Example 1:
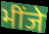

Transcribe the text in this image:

भींजे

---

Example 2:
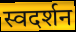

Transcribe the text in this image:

स्वदर्शन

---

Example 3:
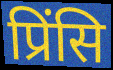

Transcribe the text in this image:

प्रिंसि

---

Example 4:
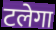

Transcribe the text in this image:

टलेगा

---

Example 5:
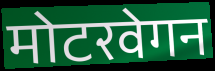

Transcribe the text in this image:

मोटरवेगन